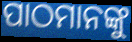
ପାଠମାନଙ୍କୁ